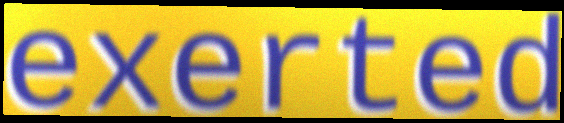
exerted